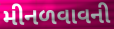
મીનળવાવની